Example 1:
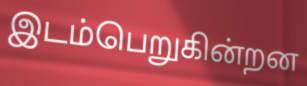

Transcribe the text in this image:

இடம்பெறுகின்றன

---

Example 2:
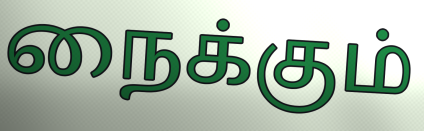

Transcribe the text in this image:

நைக்கும்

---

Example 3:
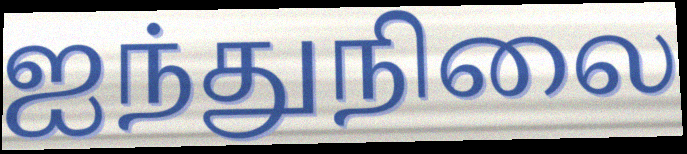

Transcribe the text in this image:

ஐந்துநிலை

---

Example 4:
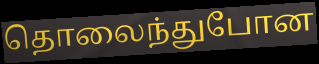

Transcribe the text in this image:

தொலைந்துபோன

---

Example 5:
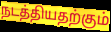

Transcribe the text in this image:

நடத்தியதற்கும்